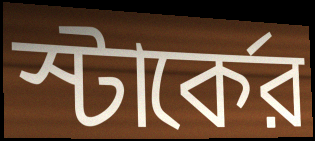
স্টার্কের